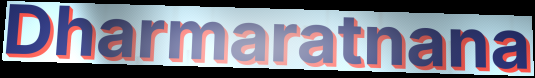
Dharmaratnana